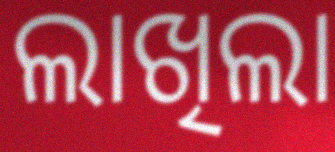
ଲାଖିଲା